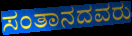
ಸಂತಾನದವರು